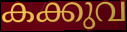
കക്കുവ